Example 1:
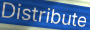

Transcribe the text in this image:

Distribute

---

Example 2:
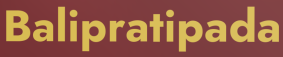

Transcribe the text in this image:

Balipratipada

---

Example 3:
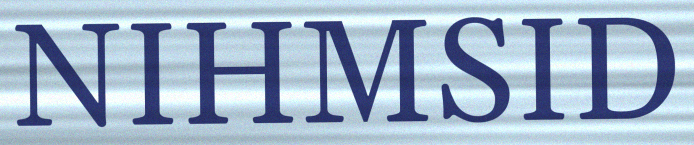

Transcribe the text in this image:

NIHMSID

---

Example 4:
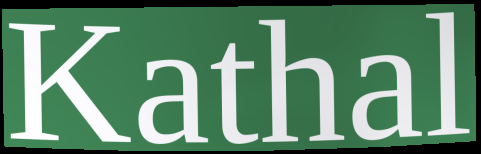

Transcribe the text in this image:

Kathal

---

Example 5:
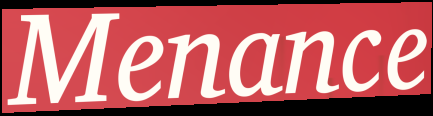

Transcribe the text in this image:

Menance